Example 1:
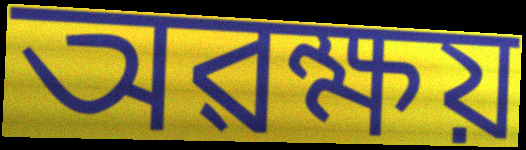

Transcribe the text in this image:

অৱক্ষয়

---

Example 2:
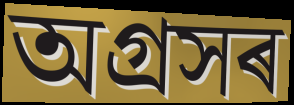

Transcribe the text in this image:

অগ্ৰসৰ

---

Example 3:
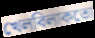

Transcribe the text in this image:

খেলবিলাকতো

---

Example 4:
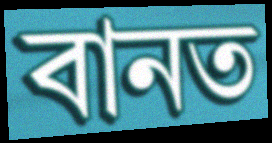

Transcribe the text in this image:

বানত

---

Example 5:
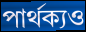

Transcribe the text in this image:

পাৰ্থক্যও